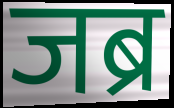
जब्र